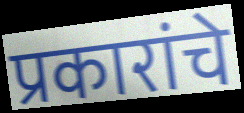
प्रकारांचे